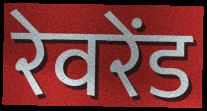
रेवरेंड